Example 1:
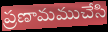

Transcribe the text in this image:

ప్రణామముచేసి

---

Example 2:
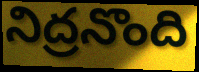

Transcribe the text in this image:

నిద్రనొంది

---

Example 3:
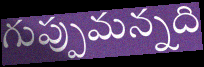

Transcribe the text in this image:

గుప్పుమన్నది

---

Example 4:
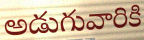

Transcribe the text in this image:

అడుగువారికి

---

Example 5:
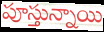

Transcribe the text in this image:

పూస్తున్నాయి